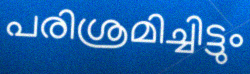
പരിശ്രമിച്ചിട്ടും